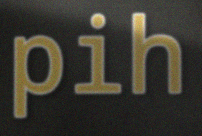
pih